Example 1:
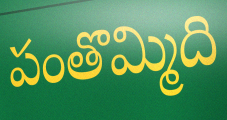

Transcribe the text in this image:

పంతొమ్మిది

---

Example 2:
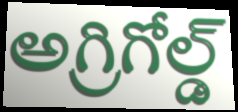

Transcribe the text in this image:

అగ్రిగోల్డ్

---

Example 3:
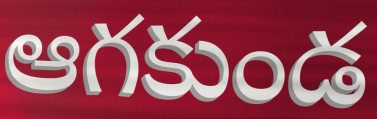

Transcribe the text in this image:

ఆగకుండ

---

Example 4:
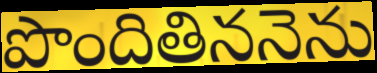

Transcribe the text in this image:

పొందితిననెను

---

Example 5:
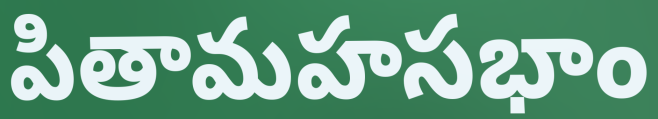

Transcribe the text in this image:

పితామహసభాం